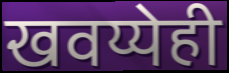
खवय्येही